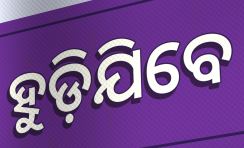
ହୁଡ଼ିଯିବେ